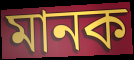
মানক